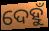
ଦେହୁଁ